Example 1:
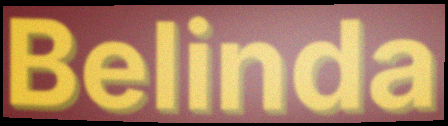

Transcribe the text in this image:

Belinda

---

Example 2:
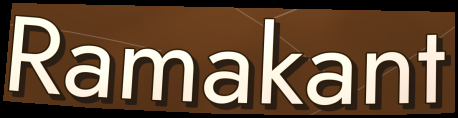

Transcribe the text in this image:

Ramakant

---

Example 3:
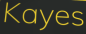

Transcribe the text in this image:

Kayes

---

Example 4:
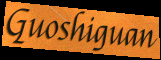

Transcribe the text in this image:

Guoshiguan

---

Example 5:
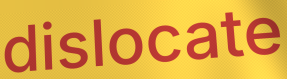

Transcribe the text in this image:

dislocate